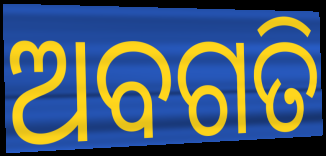
ଅବଗତି